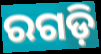
ରଗଡ଼ି